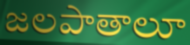
జలపాతాలూ